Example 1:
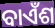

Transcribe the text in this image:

ବାଏଁଶ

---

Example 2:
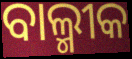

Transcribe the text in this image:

ବାଲ୍ମୀକ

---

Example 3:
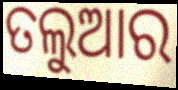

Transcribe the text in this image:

ତଲୁଆର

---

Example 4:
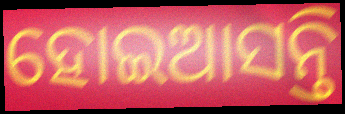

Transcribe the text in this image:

ହୋଇଆସନ୍ତି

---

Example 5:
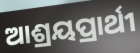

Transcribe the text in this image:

ଆଶ୍ରୟପ୍ରାର୍ଥୀ